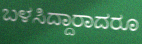
ಬಳಸಿದ್ದಾರಾದರೂ